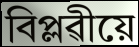
বিপ্লৱীয়ে